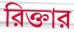
রিক্তার